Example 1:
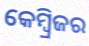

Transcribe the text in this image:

କେମ୍ୱ୍ରିଜର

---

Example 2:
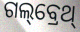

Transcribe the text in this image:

ଗଲ୍‌ବ୍ରେଥ୍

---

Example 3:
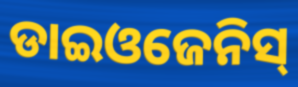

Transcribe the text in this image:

ଡାଇଓଜେନିସ୍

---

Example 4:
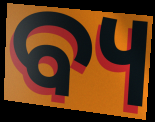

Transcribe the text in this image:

ବ୍ୟ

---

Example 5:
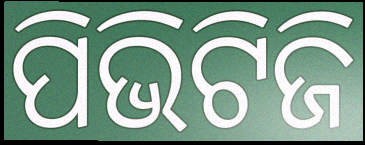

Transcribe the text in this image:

ପିଭିଟିଜି